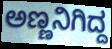
ಅಣ್ಣನಿಗಿದ್ದ